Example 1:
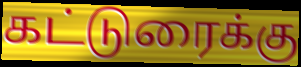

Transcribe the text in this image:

கட்டுரைக்கு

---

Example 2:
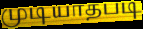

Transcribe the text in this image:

முடியாதபடி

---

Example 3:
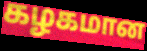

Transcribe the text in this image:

கழகமான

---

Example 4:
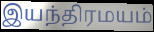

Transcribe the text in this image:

இயந்திரமயம்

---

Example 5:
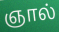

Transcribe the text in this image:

ஞால்